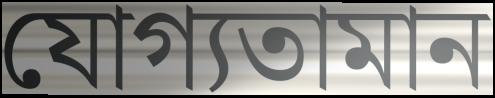
যোগ্যতামান